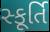
સ્કૂર્તિ